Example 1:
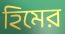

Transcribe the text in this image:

হিমের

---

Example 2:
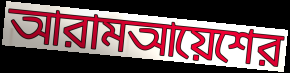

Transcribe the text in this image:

আরামআয়েশের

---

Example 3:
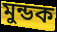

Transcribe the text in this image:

মুন্ডক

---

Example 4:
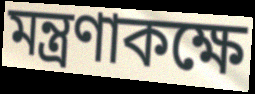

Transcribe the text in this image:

মন্ত্রণাকক্ষে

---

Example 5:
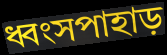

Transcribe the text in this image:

ধ্বংসপাহাড়